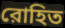
রোহিত